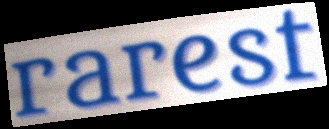
rarest